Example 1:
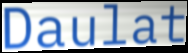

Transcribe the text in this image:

Daulat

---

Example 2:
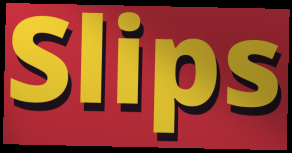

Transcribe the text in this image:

Slips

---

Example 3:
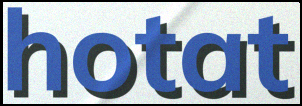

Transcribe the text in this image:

hotat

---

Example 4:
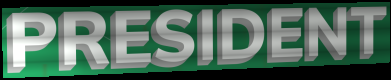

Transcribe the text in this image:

PRESIDENT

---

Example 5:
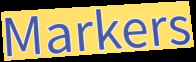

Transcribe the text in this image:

Markers